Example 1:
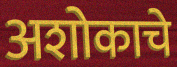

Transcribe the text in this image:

अशोकाचे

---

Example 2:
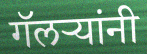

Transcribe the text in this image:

गॅलऱ्यांनी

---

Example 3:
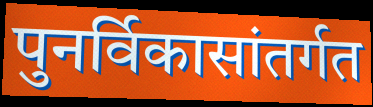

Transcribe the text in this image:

पुनर्विकासांतर्गत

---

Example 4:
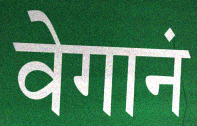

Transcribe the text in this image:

वेगानं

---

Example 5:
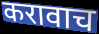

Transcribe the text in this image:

करावाच